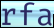
rfa